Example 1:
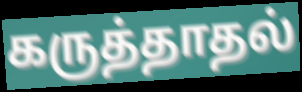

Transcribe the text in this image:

கருத்தாதல்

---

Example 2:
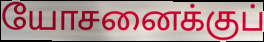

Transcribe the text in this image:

யோசனைக்குப்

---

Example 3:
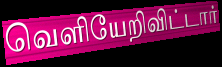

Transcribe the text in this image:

வெளியேறிவிட்டார்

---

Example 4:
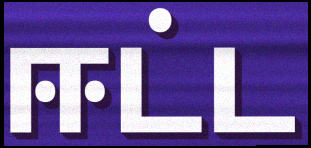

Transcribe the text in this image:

ஈட்ட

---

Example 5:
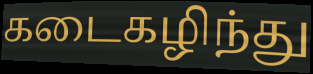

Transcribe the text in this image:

கடைகழிந்து